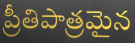
ప్రీతిపాత్రమైన